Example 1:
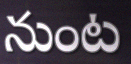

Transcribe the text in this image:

నుంట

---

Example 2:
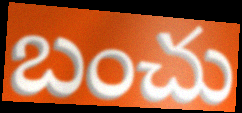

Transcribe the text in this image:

బంచు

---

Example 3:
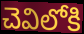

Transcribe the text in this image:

చెవిలోకి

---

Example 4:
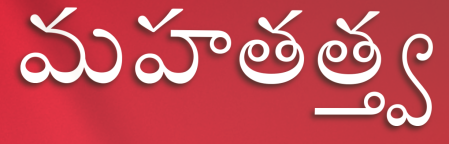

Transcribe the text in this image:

మహతత్త్వ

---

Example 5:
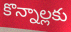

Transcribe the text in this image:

కొన్నాల్లకు